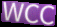
WCC